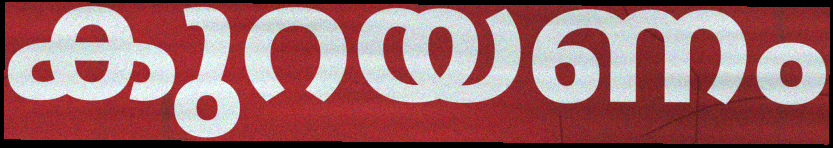
കുറയണം